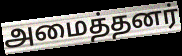
அமைத்தனர்